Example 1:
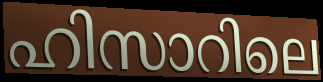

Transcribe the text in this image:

ഹിസാറിലെ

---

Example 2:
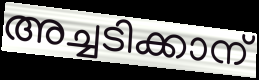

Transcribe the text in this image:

അച്ചടിക്കാന്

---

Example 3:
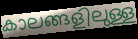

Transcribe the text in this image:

കാലങ്ങളിലുള്ള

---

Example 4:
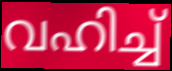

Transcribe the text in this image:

വഹിച്ച്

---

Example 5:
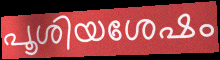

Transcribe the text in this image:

പൂശിയശേഷം